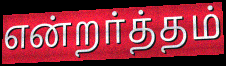
என்றர்த்தம்